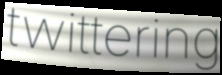
twittering